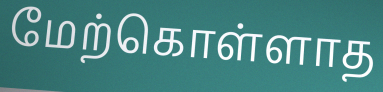
மேற்கொள்ளாத